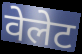
वेलेट